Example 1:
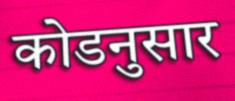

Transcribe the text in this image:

कोडनुसार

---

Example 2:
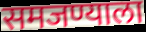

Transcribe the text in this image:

समजण्याला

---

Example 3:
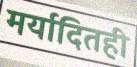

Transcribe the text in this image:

मर्यादितही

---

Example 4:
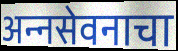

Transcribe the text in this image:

अन्नसेवनाचा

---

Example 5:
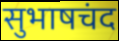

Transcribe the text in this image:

सुभाषचंद